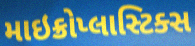
માઇક્રોપ્લાસ્ટિક્સ